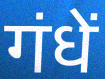
गंधें